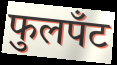
फुलपँट